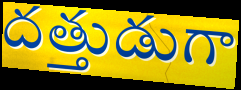
దత్తుడుగా